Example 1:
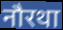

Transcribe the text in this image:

नौरथा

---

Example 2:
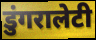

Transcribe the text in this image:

डुंगरालेटी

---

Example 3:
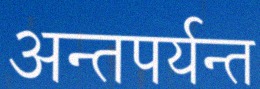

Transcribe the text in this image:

अन्तपर्यन्त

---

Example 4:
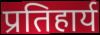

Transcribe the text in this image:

प्रतिहार्य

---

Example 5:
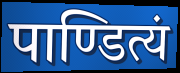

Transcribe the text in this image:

पाण्डित्यं